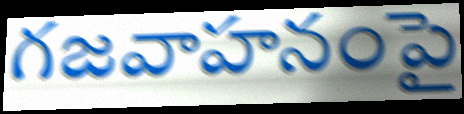
గజవాహనంపై